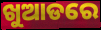
ଖୁଆଡରେ